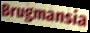
Brugmansia